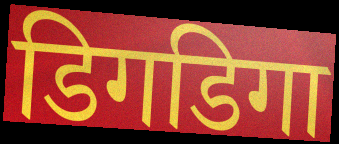
डिगडिगा